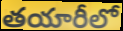
తయారీలో